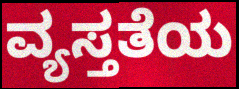
ವ್ಯಸ್ತತೆಯ